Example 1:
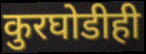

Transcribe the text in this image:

कुरघोडीही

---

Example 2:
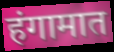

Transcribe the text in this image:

हंगामात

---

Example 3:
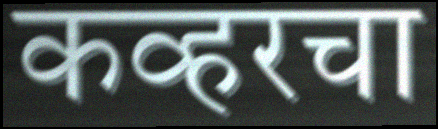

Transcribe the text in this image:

कव्हरचा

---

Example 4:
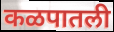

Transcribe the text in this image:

कळपातली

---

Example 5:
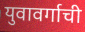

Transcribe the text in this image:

युवावर्गाची